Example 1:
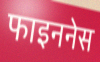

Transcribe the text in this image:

फाइननेस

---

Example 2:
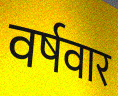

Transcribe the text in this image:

वर्षवार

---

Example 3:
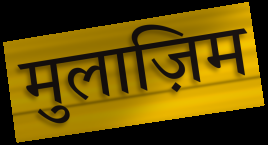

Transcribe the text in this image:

मुलाज़िम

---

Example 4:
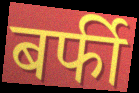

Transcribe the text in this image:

बर्फी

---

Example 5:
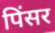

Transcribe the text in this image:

पिंसर